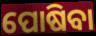
ପୋଷିବା